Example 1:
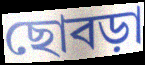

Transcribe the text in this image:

ছোবড়া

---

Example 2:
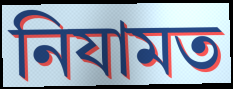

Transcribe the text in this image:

নিযামত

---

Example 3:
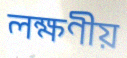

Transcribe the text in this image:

লক্ষণীয়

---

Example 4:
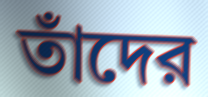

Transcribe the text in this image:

তাঁদের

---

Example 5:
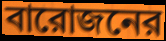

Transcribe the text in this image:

বারোজনের